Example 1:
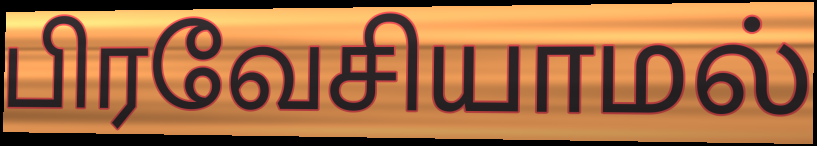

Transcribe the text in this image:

பிரவேசியாமல்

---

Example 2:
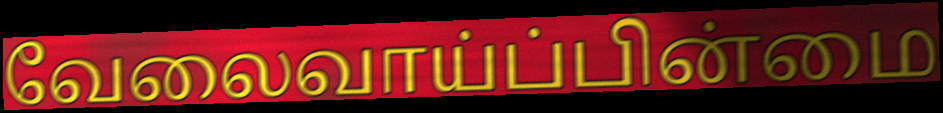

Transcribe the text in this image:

வேலைவாய்ப்பின்மை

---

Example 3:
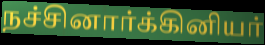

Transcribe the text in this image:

நச்சினார்க்கினியர்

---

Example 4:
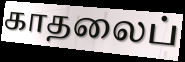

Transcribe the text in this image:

காதலைப்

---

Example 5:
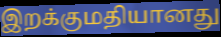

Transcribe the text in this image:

இறக்குமதியானது